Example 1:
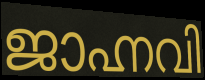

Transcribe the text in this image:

ജാഹ്നവി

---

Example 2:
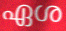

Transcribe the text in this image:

ഏശ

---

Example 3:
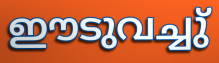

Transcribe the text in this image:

ഈടുവച്ചു്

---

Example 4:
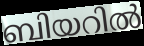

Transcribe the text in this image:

ബിയറിൽ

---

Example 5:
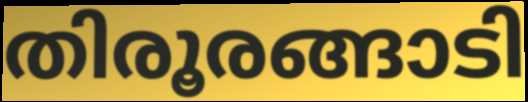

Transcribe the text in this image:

തിരൂരങ്ങാടി